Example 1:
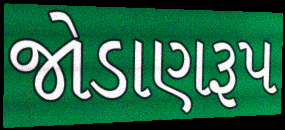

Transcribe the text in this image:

જોડાણરૂપ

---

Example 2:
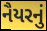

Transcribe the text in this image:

નૈયરનું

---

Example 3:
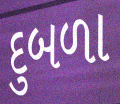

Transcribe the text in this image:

દુબળા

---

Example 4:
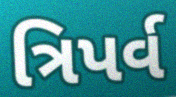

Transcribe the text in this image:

ત્રિપર્વ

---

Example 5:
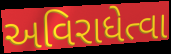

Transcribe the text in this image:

અવિરાધેત્વા